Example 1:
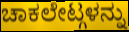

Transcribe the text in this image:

ಚಾಕಲೇಟ್ಗಳನ್ನು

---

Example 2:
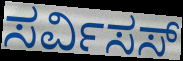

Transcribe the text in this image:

ಸರ್ವಿಸಸ್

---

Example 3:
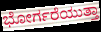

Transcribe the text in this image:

ಭೋರ್ಗರೆಯುತ್ತಾ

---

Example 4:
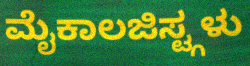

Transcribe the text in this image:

ಮೈಕಾಲಜಿಸ್ಟ್ಗಳು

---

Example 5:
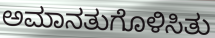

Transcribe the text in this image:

ಅಮಾನತುಗೊಳಿಸಿತು